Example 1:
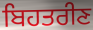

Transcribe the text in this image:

ਬਿਹਤਰੀਣ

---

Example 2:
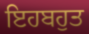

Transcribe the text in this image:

ਇਹਬਹੁਤ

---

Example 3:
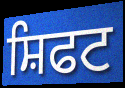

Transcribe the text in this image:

ਸ਼ਿਫਟ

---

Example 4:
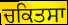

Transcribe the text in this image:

ਚਕਿਤਸਾ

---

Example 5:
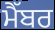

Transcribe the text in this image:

ਮੈੱਬਰ